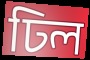
ঢিল